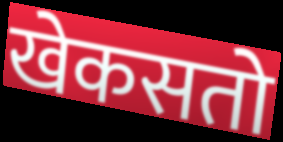
खेकसतो